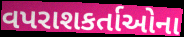
વપરાશકર્તાઓના